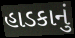
હાડકાનું